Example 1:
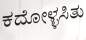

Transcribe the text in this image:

ಕದೋಳ್ಳಸಿತು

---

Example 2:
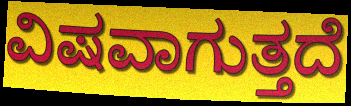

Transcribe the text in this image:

ವಿಷವಾಗುತ್ತದೆ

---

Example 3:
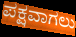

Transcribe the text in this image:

ಪಕ್ಷವಾಗಲು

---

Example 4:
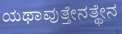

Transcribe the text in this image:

ಯಥಾವುತ್ತೇನತ್ಥೇನ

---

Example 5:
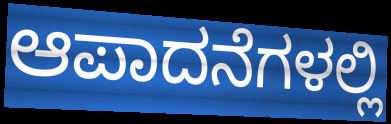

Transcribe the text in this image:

ಆಪಾದನೆಗಳಲ್ಲಿ